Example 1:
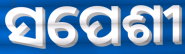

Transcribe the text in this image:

ସପେଶୀ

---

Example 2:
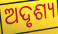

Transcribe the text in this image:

ଅଦୃଶ୍ୟ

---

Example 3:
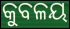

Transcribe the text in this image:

କୁବଳୟ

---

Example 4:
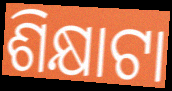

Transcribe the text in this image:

ଶିକ୍ଷାଟା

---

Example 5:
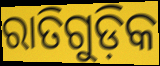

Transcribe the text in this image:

ରାତିଗୁଡ଼ିକ